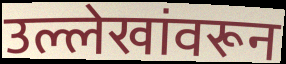
उल्लेखांवरून